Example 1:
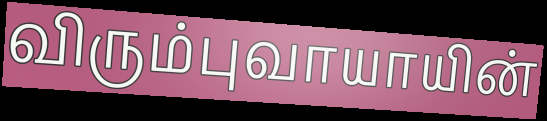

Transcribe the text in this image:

விரும்புவாயாயின்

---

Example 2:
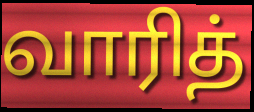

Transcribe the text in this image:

வாரித்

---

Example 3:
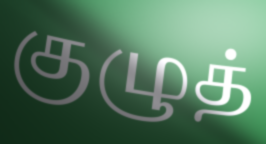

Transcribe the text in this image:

குழுத்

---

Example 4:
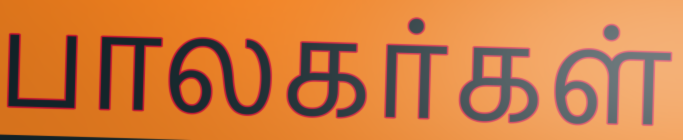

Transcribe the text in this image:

பாலகர்கள்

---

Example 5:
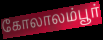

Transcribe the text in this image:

கோலாலம்பூர்